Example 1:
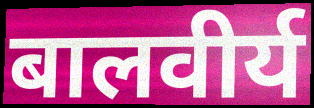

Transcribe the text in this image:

बालवीर्य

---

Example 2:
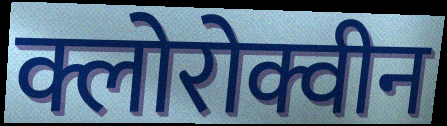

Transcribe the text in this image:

क्लोरोक्वीन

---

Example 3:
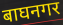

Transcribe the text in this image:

बाघनगर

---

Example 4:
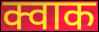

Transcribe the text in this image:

क्वाक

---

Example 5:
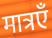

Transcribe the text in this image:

मात्रएँ